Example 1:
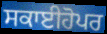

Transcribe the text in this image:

ਸਕਾਈਹੋਪਰ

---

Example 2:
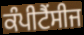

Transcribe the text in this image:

ਕੰਪੀਟੈਂਸੀਜ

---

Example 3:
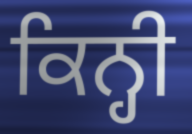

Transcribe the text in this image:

ਕਿਨ੍ਹੀ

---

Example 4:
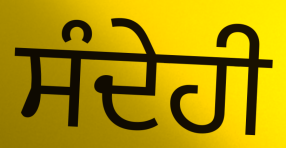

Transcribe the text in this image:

ਸੰਦੇਹੀ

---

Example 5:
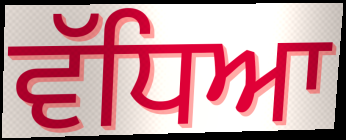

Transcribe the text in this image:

ਵੱਧਿਆ